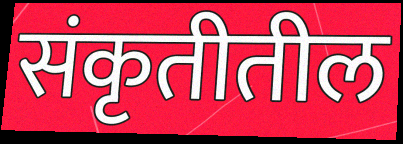
संकृतीतील